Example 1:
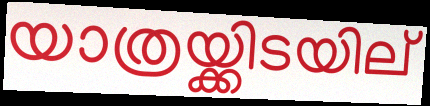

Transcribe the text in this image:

യാത്രയ്ക്കിടയില്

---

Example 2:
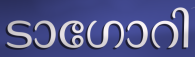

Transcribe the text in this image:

ടാഗോറി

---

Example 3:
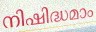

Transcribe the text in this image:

നിഷിദ്ധമാം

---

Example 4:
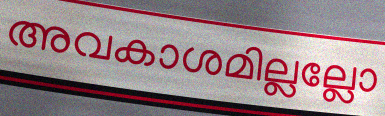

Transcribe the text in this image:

അവകാശമില്ലല്ലോ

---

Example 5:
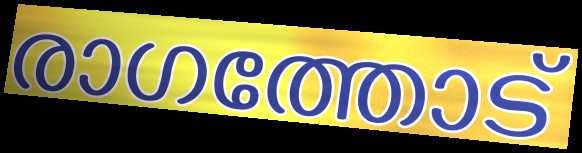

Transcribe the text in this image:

രാഗത്തോട്